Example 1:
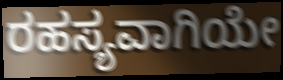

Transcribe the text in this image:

ರಹಸ್ಯವಾಗಿಯೇ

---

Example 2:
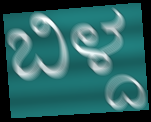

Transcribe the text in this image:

ಬಿಳ್ದ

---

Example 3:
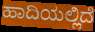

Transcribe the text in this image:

ಹಾದಿಯಲ್ಲಿದೆ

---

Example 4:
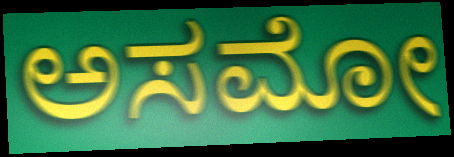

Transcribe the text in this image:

ಅಸಮೋ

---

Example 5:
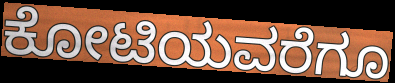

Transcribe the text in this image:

ಕೋಟಿಯವರೆಗೂ